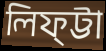
লিফ্ট্টা